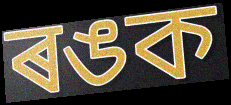
ৰঙক